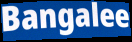
Bangalee